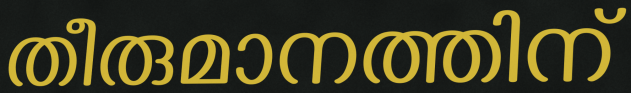
തീരുമാനത്തിന്